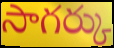
సాగర్కు